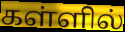
கள்ளில்